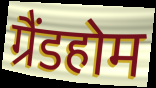
ग्रैंडहोम